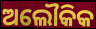
ଅଲୌକିକ